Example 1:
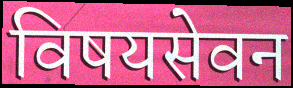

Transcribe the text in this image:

विषयसेवन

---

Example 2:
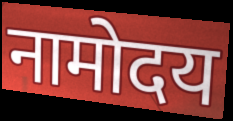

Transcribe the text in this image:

नामोदय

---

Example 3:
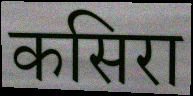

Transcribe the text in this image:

कसिरा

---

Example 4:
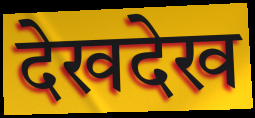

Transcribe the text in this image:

देखदेख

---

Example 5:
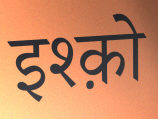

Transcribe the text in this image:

इश्क़ो